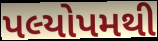
પલ્યોપમથી